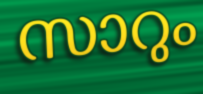
സാറും